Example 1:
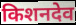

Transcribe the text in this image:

किशनदेव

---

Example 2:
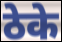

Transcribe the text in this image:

ठेके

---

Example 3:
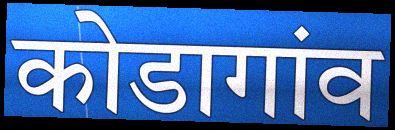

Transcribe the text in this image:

कोडागांव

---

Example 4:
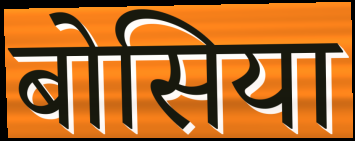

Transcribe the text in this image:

बोसिया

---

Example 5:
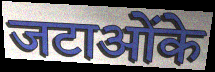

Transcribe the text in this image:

जटाओंके